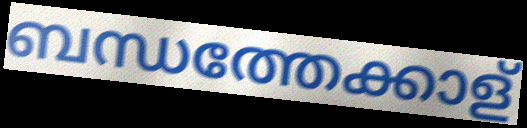
ബന്ധത്തേക്കാള്